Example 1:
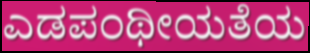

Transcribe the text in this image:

ಎಡಪಂಥೀಯತೆಯ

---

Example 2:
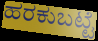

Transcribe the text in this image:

ಹರಕುಬಟ್ಟೆ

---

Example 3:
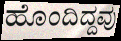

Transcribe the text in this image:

ಹೊಂದಿದ್ದವು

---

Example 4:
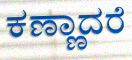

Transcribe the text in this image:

ಕಣ್ಣಾದರೆ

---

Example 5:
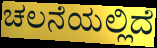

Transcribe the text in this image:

ಚಲನೆಯಲ್ಲಿದೆ